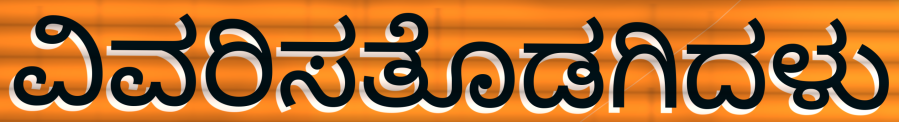
ವಿವರಿಸತೊಡಗಿದಳು